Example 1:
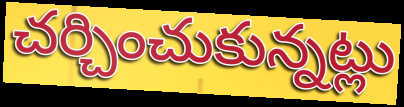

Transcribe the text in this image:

చర్చించుకున్నట్లు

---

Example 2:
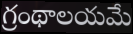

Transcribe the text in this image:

గ్రంథాలయమే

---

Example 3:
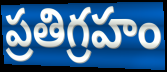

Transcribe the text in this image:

ప్రతిగ్రహం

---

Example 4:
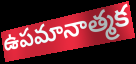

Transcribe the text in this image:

ఉపమానాత్మక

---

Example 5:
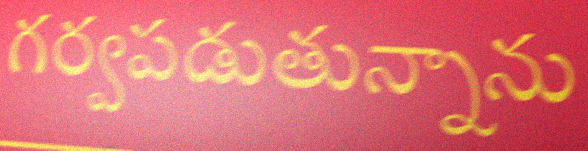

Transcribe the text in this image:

గర్వపడుతున్నాను